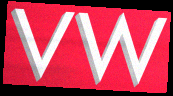
VW